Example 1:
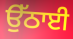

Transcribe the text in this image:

ਉੱਠਾਈ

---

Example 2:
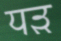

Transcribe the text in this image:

ਧੜ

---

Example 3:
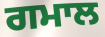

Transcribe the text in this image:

ਗਮਾਲ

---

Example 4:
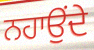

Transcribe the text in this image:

ਨਹਾਉਂਦੇ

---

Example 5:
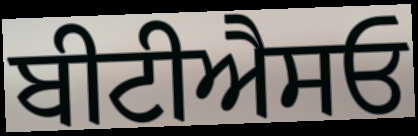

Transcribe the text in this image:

ਬੀਟੀਐਸਓ